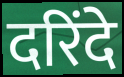
दरिंदे